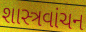
શાસ્ત્રવાંચન